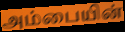
அம்பையின்